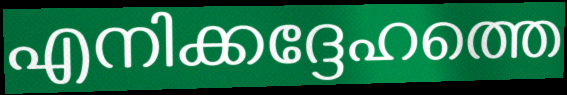
എനിക്കദ്ദേഹത്തെ